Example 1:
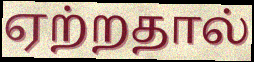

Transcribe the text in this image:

ஏற்றதால்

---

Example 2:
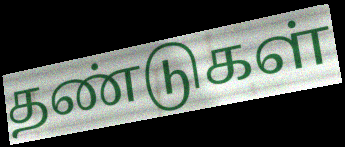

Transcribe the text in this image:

தண்டுகள்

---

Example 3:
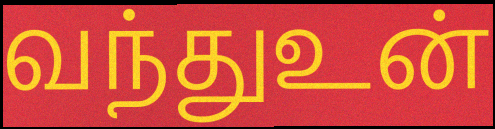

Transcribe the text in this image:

வந்துஉன்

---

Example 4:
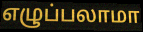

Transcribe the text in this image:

எழுப்பலாமா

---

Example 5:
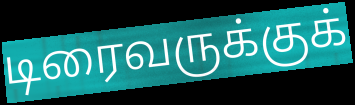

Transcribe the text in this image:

டிரைவருக்குக்